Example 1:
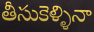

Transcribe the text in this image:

తీసుకెళ్ళినా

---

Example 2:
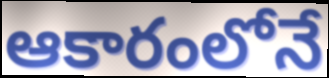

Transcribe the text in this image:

ఆకారంలోనే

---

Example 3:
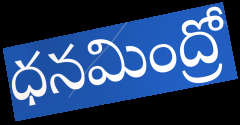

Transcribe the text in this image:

ధనమింద్రో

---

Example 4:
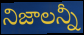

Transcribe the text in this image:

నిజాలన్నీ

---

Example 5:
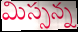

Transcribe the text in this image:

మిస్సన్న